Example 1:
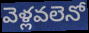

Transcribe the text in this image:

వెళ్లవలెనో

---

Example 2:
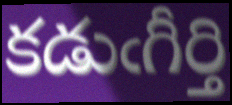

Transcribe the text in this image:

కడుఁగీర్తి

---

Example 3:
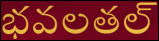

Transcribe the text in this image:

భవలతల్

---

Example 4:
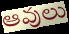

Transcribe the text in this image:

ఆవులు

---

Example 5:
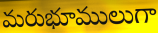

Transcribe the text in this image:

మరుభూములుగా